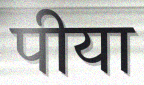
पीया